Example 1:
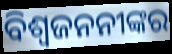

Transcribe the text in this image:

ବିଶ୍ୱଜନନୀଙ୍କର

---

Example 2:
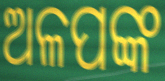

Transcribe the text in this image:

ଅଳପଙ୍କ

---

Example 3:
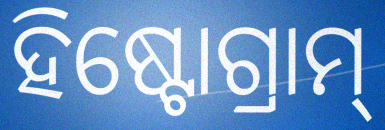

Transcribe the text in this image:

ହିଷ୍ଟୋଗ୍ରାମ୍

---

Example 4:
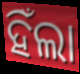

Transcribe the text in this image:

ହିଁଲା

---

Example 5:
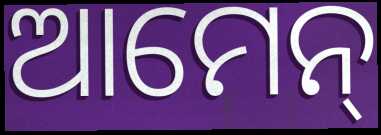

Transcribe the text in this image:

ଆମେନ୍